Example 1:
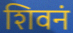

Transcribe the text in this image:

शिवनं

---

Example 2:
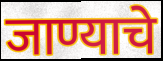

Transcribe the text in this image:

जाण्याचे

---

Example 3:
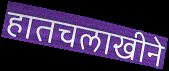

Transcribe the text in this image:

हातचलाखीने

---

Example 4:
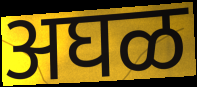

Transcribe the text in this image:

अघळ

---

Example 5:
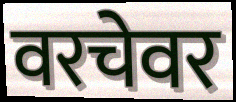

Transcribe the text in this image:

वरचेवर